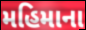
મહિમાના